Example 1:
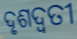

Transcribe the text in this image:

ଦୃଶଦ୍ୱତୀ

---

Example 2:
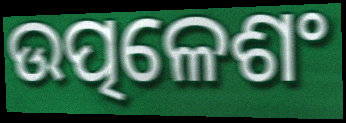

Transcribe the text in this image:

ଉତ୍ପଳେଶଂ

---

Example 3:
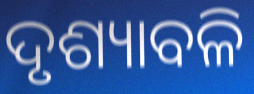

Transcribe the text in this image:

ଦୃଶ୍ୟାବଳି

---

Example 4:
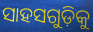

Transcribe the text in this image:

ସାହସଗୁଡ଼ିକୁ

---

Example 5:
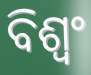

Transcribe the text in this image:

ବିଶ୍ୱଂ